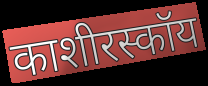
काशीरस्कॉय